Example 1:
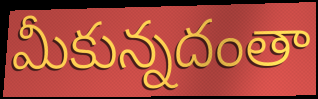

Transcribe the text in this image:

మీకున్నదంతా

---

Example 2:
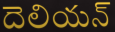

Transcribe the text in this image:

దెలియన్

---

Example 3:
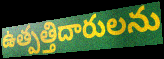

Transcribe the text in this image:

ఉత్పత్తిదారులను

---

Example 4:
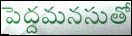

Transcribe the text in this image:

పెద్దమనసుతో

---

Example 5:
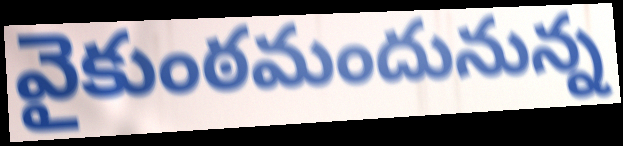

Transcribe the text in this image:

వైకుంఠమందునున్న